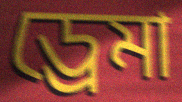
ড্রেমা